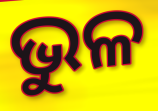
ଭୁଳ